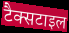
टैक्सटाइल